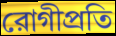
রোগীপ্রতি